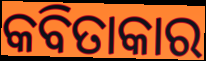
କବିତାକାର